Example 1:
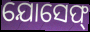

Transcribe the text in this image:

ଯୋସେଫ୍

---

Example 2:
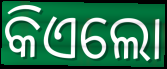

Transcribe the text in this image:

କିଏଲୋ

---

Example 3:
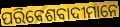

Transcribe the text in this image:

ପରିବେଶବାଦୀମାନେ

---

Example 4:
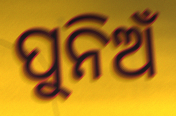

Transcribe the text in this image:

ପୁନିଅଁ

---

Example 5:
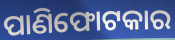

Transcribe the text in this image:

ପାଣିଫୋଟକାର